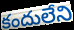
కందులేని